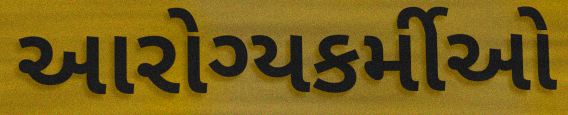
આરોગ્યકર્મીઓ